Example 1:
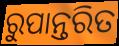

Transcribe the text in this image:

ରୁପାନ୍ତରିତ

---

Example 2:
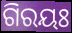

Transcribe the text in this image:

ଗିରୟଃ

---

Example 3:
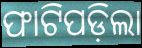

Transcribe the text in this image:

ଫାଟିପଡ଼ିଲା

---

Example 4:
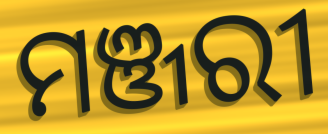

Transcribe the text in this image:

ମଞ୍ଜରୀ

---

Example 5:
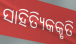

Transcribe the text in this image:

ସାହିତ୍ୟିକକୃତି